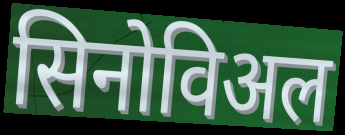
सिनोविअल